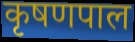
कृषणपाल